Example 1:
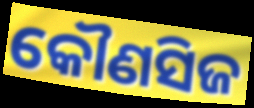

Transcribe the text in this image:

କୌଣସିଜ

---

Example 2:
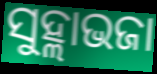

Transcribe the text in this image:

ସୁହ୍ଲାଭଜା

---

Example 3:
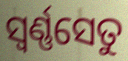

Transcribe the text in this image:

ସ୍ଵର୍ଣ୍ଣସେତୁ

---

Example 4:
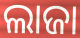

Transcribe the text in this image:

ଲାଜା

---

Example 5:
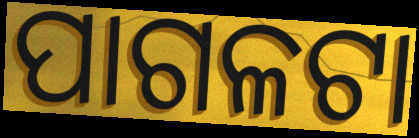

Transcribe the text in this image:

ପାଗଳଟା